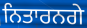
ਨਿਤਾਰਨਗੇ